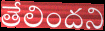
తేలిందని